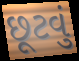
છૂટવું